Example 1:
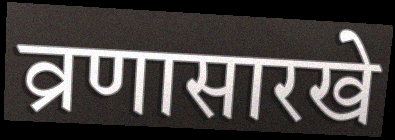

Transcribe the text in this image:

व्रणासारखे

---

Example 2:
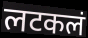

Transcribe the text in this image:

लटकलं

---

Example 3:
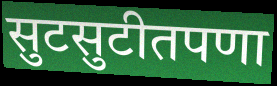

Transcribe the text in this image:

सुटसुटीतपणा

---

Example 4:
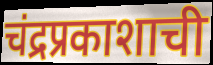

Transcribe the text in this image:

चंद्रप्रकाशाची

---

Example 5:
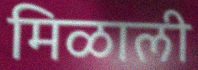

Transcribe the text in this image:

मिळाली